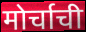
मोर्चाची